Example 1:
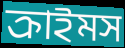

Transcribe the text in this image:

ক্রাইমস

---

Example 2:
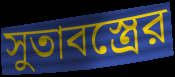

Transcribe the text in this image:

সুতাবস্ত্রের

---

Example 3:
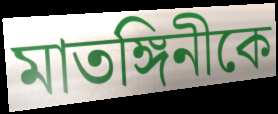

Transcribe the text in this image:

মাতঙ্গিনীকে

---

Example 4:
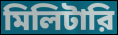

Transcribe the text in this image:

মিলিটারি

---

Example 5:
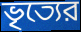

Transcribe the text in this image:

ভৃত্যের